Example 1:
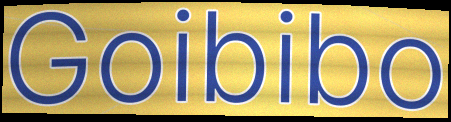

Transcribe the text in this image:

Goibibo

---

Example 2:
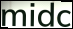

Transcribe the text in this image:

midc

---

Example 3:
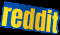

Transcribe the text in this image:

reddit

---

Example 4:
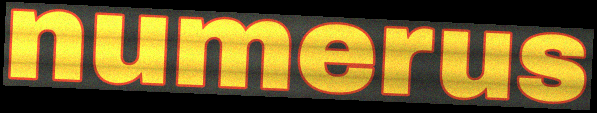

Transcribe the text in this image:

numerus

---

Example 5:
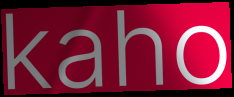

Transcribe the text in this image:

kaho